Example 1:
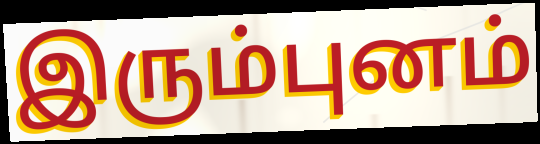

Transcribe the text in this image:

இரும்புனம்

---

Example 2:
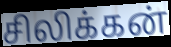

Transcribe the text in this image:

சிலிக்கன்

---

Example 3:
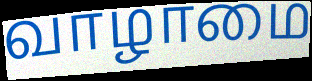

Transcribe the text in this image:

வாழாமை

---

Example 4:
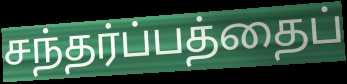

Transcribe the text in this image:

சந்தர்ப்பத்தைப்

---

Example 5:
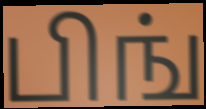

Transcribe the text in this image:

பிங்